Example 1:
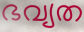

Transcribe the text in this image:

ഭവ്യത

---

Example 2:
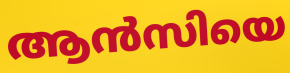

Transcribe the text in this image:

ആൻസിയെ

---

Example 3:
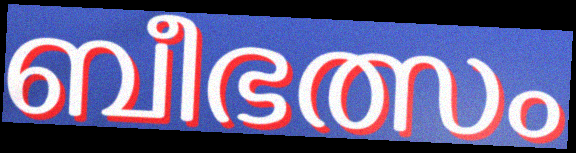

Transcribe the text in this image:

ബീഭത്സം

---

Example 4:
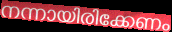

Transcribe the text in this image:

നന്നായിരിക്കേണം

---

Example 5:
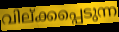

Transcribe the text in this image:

വില്ക്കപ്പെടുന്ന